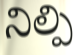
నిల్పి